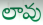
లావు